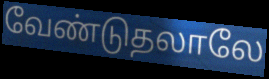
வேண்டுதலாலே